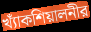
খ্যাঁকশিয়ালনীর